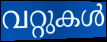
വറ്റുകൾ